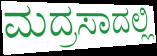
ಮದ್ರಸಾದಲ್ಲಿ